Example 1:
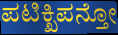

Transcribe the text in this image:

ಪಟಿಕ್ಖಿಪನ್ತೋ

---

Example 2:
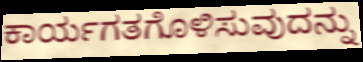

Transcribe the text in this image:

ಕಾರ್ಯಗತಗೊಳಿಸುವುದನ್ನು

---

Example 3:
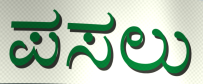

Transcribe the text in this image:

ಪಸಲು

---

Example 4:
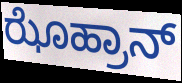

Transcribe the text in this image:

ಝೊಹ್ರಾನ್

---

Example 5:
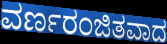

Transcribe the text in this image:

ವರ್ಣರಂಜಿತವಾದ